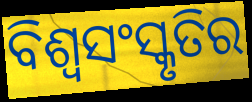
ବିଶ୍ୱସଂସ୍କୃତିର